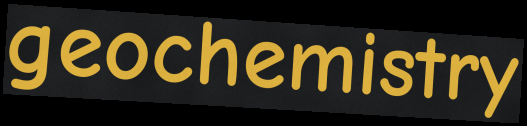
geochemistry